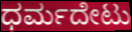
ಧರ್ಮದೇಟು